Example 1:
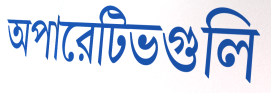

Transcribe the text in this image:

অপারেটিভগুলি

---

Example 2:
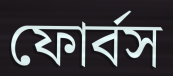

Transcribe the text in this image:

ফোর্বস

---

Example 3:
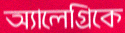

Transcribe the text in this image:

অ্যালেগ্রিকে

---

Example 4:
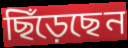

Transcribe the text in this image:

ছিঁড়েছেন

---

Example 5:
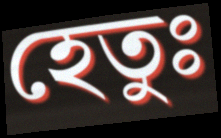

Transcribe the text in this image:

হেতুঃ